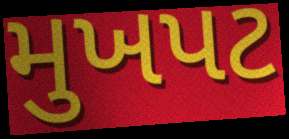
મુખપટ